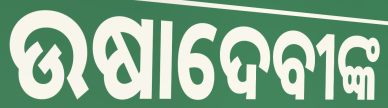
ଉଷାଦେବୀଙ୍କ